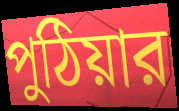
পুঠিয়ার